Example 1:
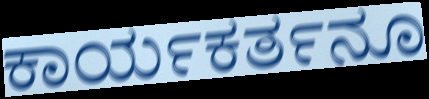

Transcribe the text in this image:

ಕಾರ್ಯಕರ್ತನೂ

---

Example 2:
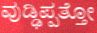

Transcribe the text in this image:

ವುಡ್ಢಿಪ್ಪತ್ತೋ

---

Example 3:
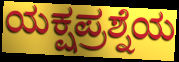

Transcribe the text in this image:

ಯಕ್ಷಪ್ರಶ್ನೆಯ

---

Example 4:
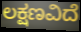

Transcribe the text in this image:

ಲಕ್ಷಣವಿದೆ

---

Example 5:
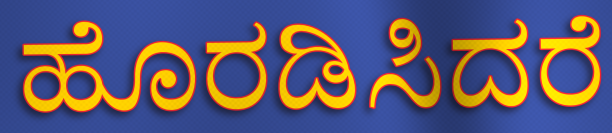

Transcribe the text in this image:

ಹೊರಡಿಸಿದರೆ